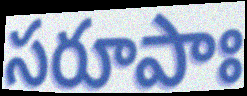
సరూపాః